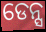
ଡେନ୍ସ